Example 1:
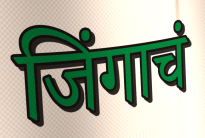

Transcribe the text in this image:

जिंगाचं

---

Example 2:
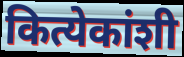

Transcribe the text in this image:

कित्येकांशी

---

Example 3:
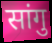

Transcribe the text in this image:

सांगु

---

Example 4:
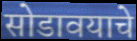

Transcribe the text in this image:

सोडावयाचे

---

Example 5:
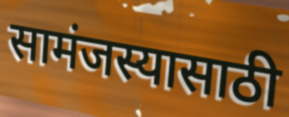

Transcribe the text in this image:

सामंजस्यासाठी